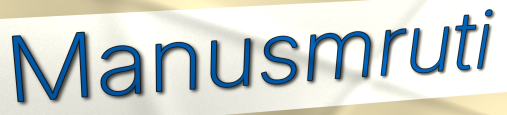
Manusmruti